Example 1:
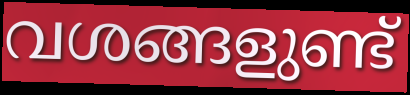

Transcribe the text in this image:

വശങ്ങളുണ്ട്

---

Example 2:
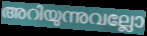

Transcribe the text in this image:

അറിയുന്നുവല്ലോ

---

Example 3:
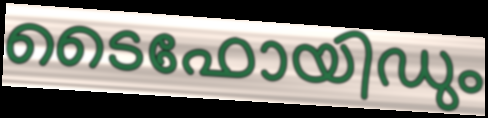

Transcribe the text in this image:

ടൈഫോയിഡും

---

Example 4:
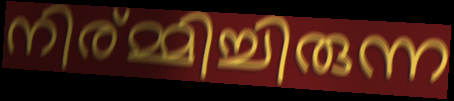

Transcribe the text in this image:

നിര്മ്മിച്ചിരുന്ന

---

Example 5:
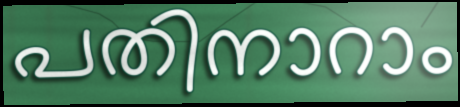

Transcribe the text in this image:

പതിനാറാം